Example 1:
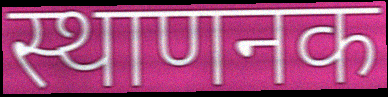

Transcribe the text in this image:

स्थाणनक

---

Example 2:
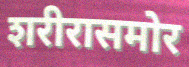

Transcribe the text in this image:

शरीरासमोर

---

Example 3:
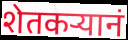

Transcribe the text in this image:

शेतकर्‍यानं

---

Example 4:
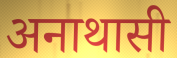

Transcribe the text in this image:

अनाथासी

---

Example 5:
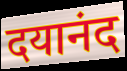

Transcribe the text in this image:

दयानंद